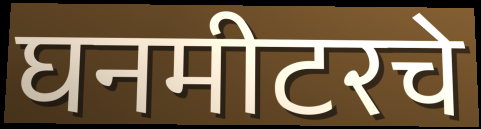
घनमीटरचे